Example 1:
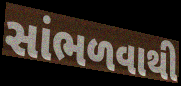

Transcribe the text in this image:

સાંભળવાથી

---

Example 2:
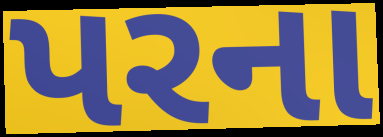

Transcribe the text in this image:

પરના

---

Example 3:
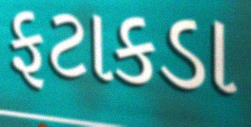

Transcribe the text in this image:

ફટાકડા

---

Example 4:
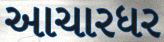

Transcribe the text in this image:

આચારધર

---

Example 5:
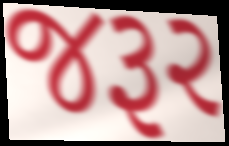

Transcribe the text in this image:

જરૂર